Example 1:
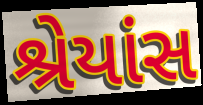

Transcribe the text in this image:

શ્રેયાંસ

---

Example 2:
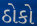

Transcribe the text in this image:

ઠોકો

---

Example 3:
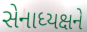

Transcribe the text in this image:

સેનાધ્યક્ષને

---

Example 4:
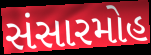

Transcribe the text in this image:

સંસારમોહ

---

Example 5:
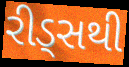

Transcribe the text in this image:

રીડ્સથી